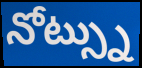
నోట్స్ను